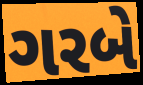
ગરબે